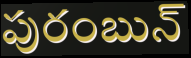
పురంబున్